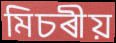
মিচৰীয়